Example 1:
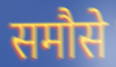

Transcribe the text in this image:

समौसे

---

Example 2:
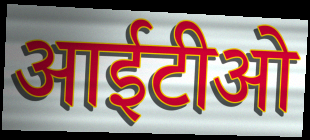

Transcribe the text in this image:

आईटीओ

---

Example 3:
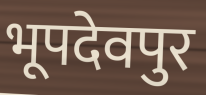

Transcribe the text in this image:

भूपदेवपुर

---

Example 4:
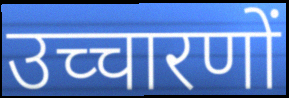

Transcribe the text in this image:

उच्चारणों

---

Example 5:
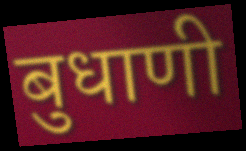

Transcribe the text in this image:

बुधाणी